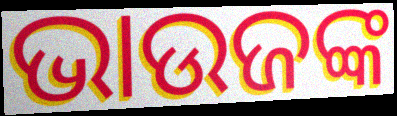
ଭାଉଜଙ୍କ